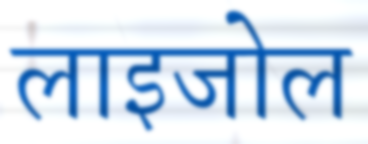
लाइजोल